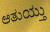
ಆತುಯ್ತು